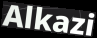
Alkazi